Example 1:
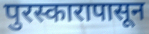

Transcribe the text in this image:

पुरस्कारापासून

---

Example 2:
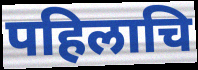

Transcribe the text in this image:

पहिलाचि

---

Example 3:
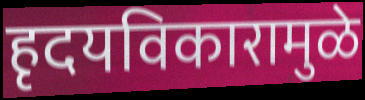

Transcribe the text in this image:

हृदयविकारामुळे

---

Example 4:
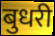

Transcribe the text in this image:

बुधरी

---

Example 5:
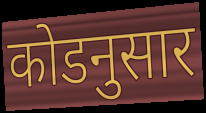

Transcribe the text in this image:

कोडनुसार